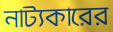
নাট্যকারের